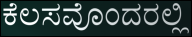
ಕೆಲಸವೊಂದರಲ್ಲಿ